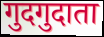
गुदगुदाता